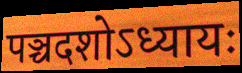
पञ्चदशोऽध्यायः